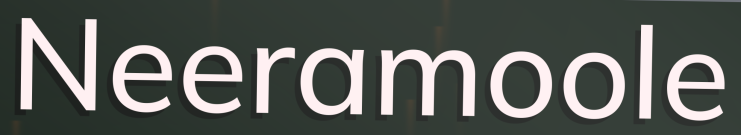
Neeramoole